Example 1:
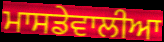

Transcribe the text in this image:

ਮਾਸਡੇਵਾਲੀਆ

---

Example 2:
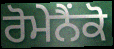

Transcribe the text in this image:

ਰੋਮੇਨੈਂਕੋ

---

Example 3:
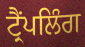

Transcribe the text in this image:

ਟ੍ਰੈਂਪਲਿੰਗ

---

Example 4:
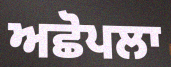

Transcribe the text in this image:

ਅਛੋਪਲਾ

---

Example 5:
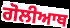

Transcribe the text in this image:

ਗੋਲੀਆਥ